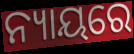
ନ୍ୟାୟରେ